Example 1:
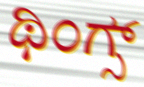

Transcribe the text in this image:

ಥಿಂಗ್ಸ್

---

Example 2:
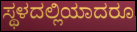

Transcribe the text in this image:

ಸ್ಥಳದಲ್ಲಿಯಾದರೂ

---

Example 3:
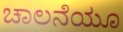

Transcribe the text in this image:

ಚಾಲನೆಯೂ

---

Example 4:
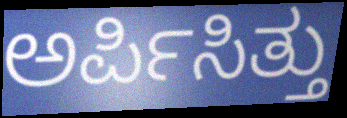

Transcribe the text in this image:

ಅರ್ಪಿಸಿತ್ತು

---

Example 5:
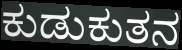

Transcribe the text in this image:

ಕುಡುಕುತನ